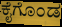
ಕೈಗೊಂಡ